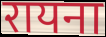
रायना